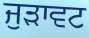
ਜੁੜਾਵਟ